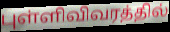
புள்ளிவிவரத்தில்